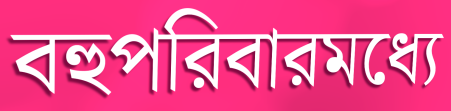
বহুপরিবারমধ্যে